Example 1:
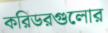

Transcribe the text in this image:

করিডরগুলোর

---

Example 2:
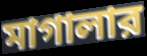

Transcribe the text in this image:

মাগালার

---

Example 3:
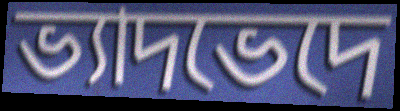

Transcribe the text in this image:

ভ্যাদভেদে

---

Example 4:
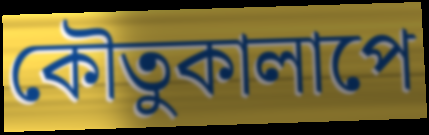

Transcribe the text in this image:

কৌতুকালাপে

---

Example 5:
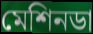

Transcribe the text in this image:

মেশিনডা